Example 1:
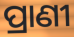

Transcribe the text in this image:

ପ୍ରାଣୀ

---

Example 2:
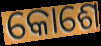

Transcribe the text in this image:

କୋଶେ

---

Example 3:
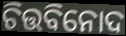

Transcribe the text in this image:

ଚିତ୍ତବିନୋଦ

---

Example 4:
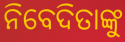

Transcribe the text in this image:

ନିବେଦିତାଙ୍କୁ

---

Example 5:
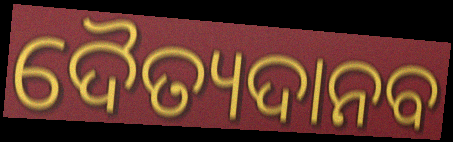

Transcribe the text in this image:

ଦୈତ୍ୟଦାନବ